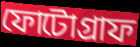
ফোটোগ্রাফ